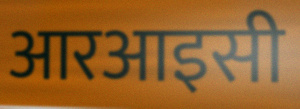
आरआइसी